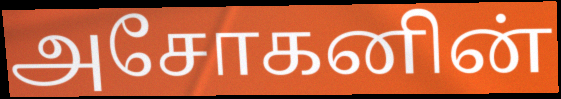
அசோகனின்